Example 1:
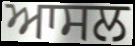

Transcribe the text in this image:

ਆਸਲ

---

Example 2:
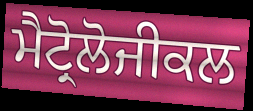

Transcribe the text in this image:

ਮੈਟ੍ਰੋਲੋਜੀਕਲ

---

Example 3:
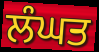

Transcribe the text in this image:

ਲੰਘਤ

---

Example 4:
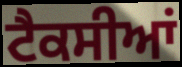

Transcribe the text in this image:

ਟੈਕਸੀਆਂ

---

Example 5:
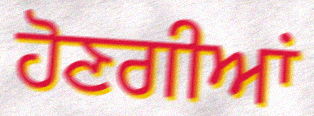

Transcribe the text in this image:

ਹੋਣਗੀਆਂ